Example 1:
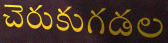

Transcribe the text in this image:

చెరుకుగడల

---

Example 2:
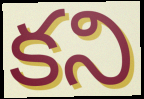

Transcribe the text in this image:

కని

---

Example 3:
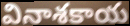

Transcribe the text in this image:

వినాశకాయ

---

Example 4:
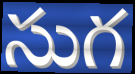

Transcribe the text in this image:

సుగ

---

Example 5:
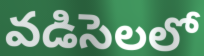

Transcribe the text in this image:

వడిసెలలో